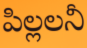
పిల్లలనీ